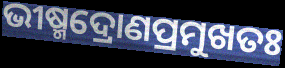
ଭୀଷ୍ମଦ୍ରୋଣପ୍ରମୁଖତଃ